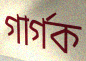
গাৰ্গক